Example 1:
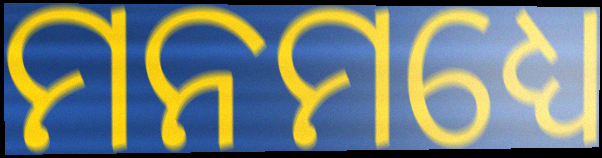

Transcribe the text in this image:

ମନମଧ୍ୟେ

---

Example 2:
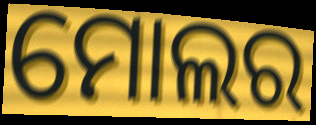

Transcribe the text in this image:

ମୋଲର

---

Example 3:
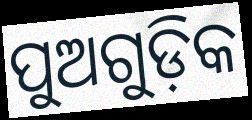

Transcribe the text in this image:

ପୁଅଗୁଡ଼ିକ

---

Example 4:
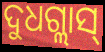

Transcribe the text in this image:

ଦୁଧଗ୍ଲାସ୍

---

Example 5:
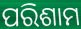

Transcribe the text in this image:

ପରିଶାମ